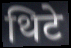
थिटे